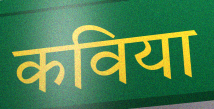
कविया